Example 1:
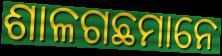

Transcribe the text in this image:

ଶାଳଗଛମାନେ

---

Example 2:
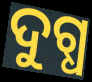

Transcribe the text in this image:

ଦୁଗ୍ଧ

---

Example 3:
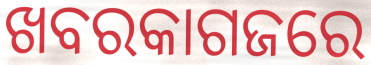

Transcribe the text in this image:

ଖବରକାଗଜରେ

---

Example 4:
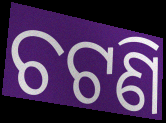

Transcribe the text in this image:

ଚଟଣି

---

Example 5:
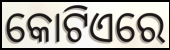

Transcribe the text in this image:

କୋଟିଏରେ